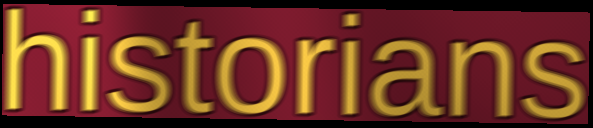
historians